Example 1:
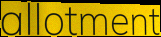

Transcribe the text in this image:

allotment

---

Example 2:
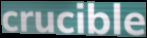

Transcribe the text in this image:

crucible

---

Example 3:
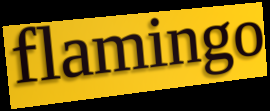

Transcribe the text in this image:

flamingo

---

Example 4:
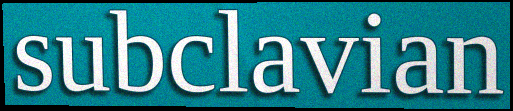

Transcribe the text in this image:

subclavian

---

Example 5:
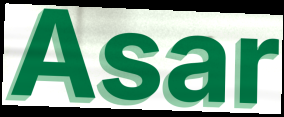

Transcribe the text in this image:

Asar